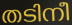
തടിനീ